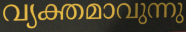
വ്യക്തമാവുന്നു